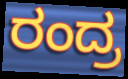
ರಂದ್ರ